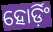
ହୋର୍ଡ଼ିଂ